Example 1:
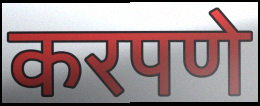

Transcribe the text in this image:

करपणे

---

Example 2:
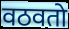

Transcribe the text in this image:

वठवतो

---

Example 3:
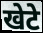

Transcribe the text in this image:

खेटे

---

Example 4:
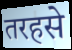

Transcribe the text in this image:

तरहसे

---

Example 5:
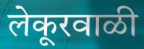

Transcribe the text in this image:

लेकूरवाळी